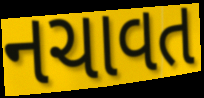
નચાવત